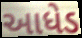
આધેડ